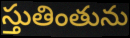
స్తుతింతును